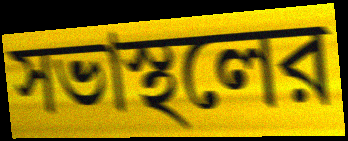
সভাস্থলের